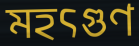
মহৎগুণ